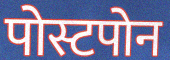
पोस्टपोन